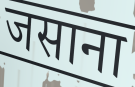
जसाना